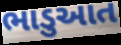
ભાડુઆત